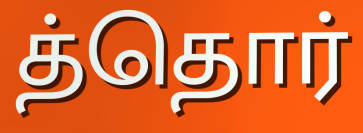
த்தொர்